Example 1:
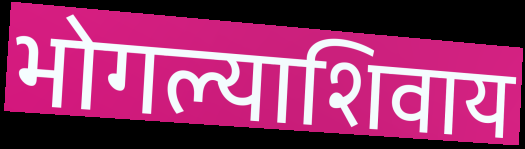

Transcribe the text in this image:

भोगल्याशिवाय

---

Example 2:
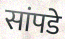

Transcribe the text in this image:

सांपडे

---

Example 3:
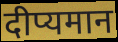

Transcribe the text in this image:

दीप्यमान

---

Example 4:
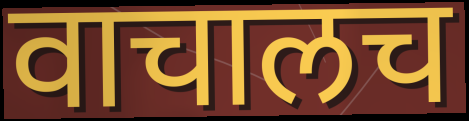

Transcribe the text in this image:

वाचालच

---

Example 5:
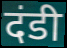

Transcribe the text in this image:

दंडी